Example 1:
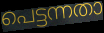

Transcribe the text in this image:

പെട്ടന്നതാ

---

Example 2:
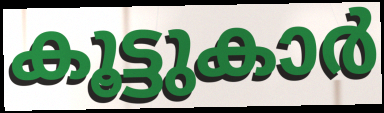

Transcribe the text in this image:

കൂട്ടുകാർ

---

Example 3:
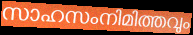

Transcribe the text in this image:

സാഹസംനിമിത്തവും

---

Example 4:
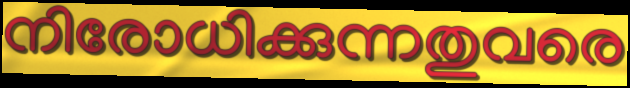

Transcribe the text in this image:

നിരോധിക്കുന്നതുവരെ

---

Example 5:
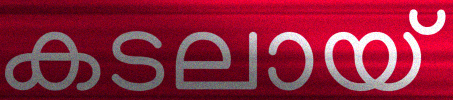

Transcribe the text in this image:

കടലായ്